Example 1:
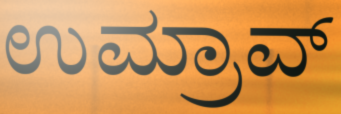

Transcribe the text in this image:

ಉಮ್ರಾವ್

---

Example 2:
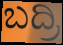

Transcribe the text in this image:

ಬದ್ರಿ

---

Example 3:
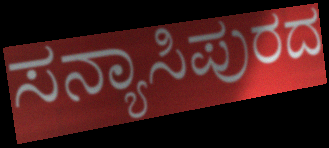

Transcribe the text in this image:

ಸನ್ಯಾಸಿಪುರದ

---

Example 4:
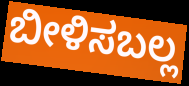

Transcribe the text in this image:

ಬೀಳಿಸಬಲ್ಲ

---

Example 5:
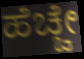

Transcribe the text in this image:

ಹೆಚ್ಚೇ